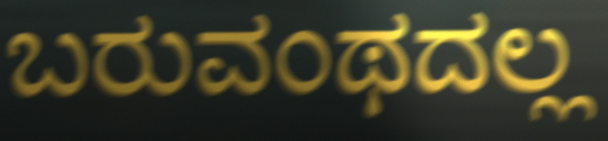
ಬರುವಂಥದಲ್ಲ